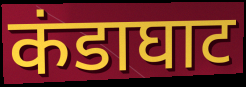
कंडाघाट